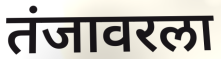
तंजावरला